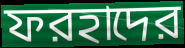
ফরহাদের